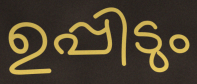
ഉപ്പിടും